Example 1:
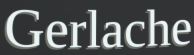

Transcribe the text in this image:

Gerlache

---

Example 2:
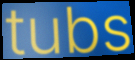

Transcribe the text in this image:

tubs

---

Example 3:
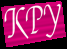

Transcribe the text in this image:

KPY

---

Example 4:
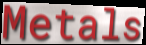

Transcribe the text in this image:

Metals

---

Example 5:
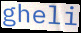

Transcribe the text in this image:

gheli